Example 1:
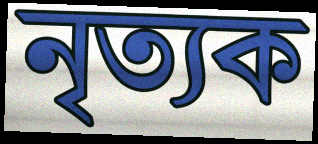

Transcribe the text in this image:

নৃত্যক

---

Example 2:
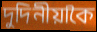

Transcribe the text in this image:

দুদিনীয়াকৈ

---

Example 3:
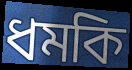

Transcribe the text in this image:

ধমকি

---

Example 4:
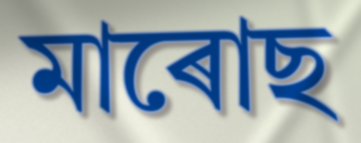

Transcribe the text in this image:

মাৰোছ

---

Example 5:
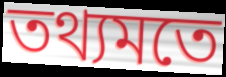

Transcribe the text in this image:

তথ্যমতে